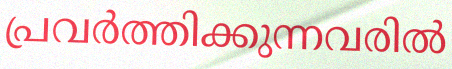
പ്രവർത്തിക്കുന്നവരിൽ